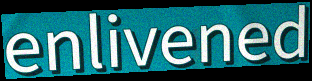
enlivened